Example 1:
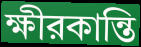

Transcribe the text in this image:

ক্ষীরকান্তি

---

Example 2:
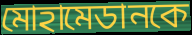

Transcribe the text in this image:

মোহামেডানকে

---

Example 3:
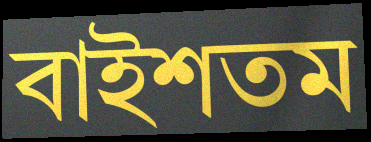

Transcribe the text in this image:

বাইশতম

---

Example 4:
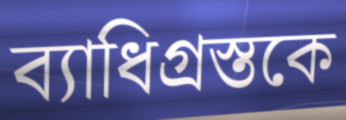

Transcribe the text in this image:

ব্যাধিগ্রস্তকে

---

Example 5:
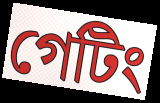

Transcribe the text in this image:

গেটিং